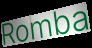
Romba